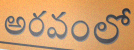
అరవంలో